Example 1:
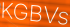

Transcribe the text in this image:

KGBVs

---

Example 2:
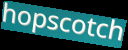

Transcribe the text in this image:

hopscotch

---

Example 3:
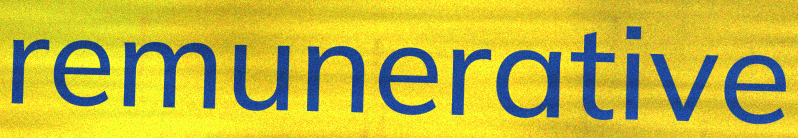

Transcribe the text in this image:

remunerative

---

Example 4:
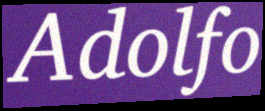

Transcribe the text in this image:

Adolfo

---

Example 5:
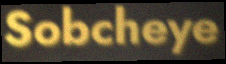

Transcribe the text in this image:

Sobcheye